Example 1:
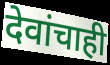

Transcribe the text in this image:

देवांचाही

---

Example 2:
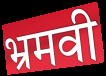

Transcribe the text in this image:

भ्रमवी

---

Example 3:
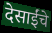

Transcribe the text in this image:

देसाईंचे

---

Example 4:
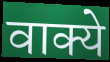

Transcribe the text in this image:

वाक्ये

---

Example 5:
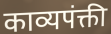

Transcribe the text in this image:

काव्यपंक्ती